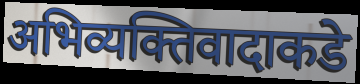
अभिव्यक्तिवादाकडे